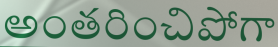
అంతరించిపోగా